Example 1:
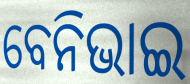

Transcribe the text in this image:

ବେନିଭାଇ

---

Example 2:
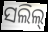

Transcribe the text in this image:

ସଲିଲ୍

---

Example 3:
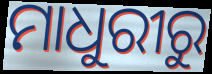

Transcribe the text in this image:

ମାଧୁରୀରୁ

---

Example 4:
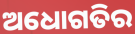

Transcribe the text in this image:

ଅଧୋଗତିର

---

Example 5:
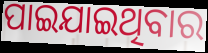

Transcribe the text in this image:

ପାଇଯାଇଥିବାର